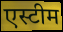
एस्टीम